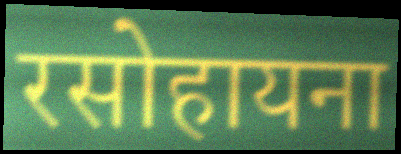
रसोहायना